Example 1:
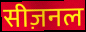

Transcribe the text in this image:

सीज़नल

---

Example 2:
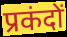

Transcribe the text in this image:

प्रकंदों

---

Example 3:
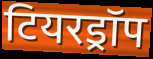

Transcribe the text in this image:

टियरड्रॉप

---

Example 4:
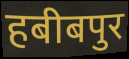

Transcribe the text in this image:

हबीबपुर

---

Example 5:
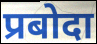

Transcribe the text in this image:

प्रबोदा